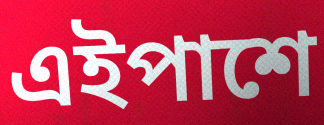
এইপাশে